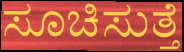
ಸೂಚಿಸುತ್ತೆ